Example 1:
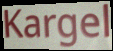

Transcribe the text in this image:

Kargel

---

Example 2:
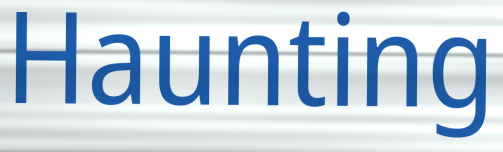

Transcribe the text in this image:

Haunting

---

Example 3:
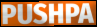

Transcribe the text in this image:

PUSHPA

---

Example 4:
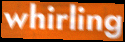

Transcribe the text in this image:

whirling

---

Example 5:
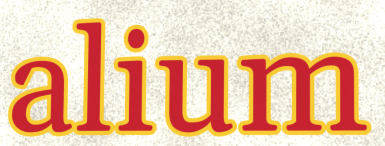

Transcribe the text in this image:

alium